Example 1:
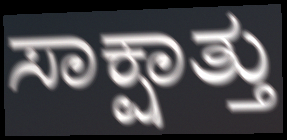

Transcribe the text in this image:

ಸಾಕ್ಷಾತ್ತು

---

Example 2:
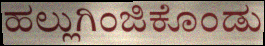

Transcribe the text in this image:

ಹಲ್ಲುಗಿಂಜಿಕೊಂಡು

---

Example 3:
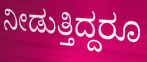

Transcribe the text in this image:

ನೀಡುತ್ತಿದ್ದರೂ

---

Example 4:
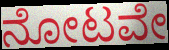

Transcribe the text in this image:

ನೋಟವೇ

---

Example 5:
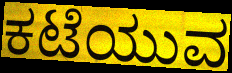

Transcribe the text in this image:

ಕಟೆಯುವ